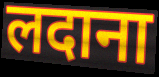
लदाना